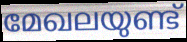
മേഖലയുണ്ട്